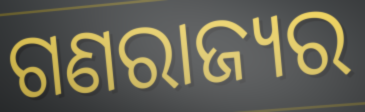
ଗଣରାଜ୍ୟର